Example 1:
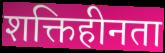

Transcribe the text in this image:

शक्तिहीनता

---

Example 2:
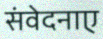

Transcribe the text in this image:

संवेदनाए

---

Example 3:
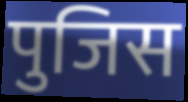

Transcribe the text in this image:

पुजिस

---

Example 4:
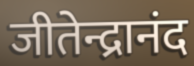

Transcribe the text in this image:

जीतेन्द्रानंद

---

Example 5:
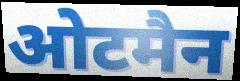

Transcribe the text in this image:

ओटमैन